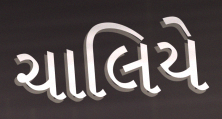
ચાલિયે